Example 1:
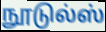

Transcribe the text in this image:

நூடுல்ஸ்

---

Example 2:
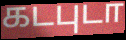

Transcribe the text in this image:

கடபுடா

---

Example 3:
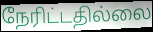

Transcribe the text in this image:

நேரிட்டதில்லை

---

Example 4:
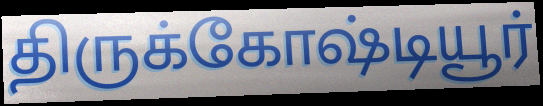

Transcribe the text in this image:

திருக்கோஷ்டியூர்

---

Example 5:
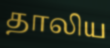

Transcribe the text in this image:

தாலிய